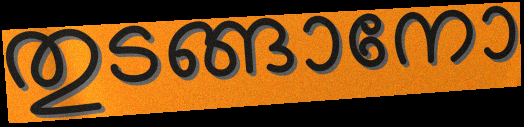
തുടങ്ങാനോ